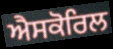
ਐਸਕੋਰਿਲ